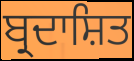
ਬ੍ਰਦਾਸ਼ਿਤ